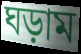
ঘড়াম